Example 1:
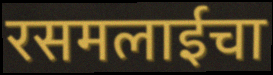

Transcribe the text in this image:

रसमलाईचा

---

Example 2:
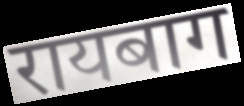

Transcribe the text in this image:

रायबाग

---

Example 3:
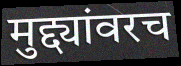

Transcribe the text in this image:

मुद्द्यांवरच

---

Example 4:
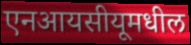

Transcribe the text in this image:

एनआयसीयूमधील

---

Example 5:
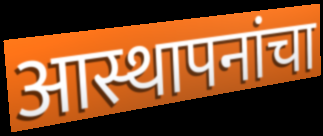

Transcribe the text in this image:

आस्थापनांचा